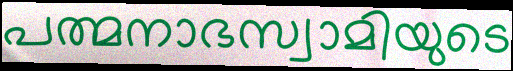
പത്മനാഭസ്വാമിയുടെ